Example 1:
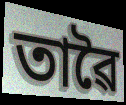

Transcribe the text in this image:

তাৱৈ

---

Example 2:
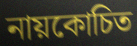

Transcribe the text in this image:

নায়কোচিত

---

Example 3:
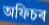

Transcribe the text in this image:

অফিচৰ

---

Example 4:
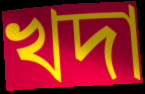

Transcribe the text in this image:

খদা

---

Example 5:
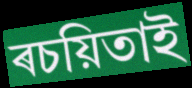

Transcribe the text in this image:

ৰচয়িতাই